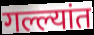
गल्ल्यांत